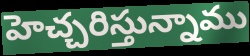
హెచ్చరిస్తున్నాము